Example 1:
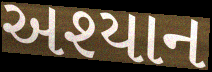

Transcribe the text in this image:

અશ્યાન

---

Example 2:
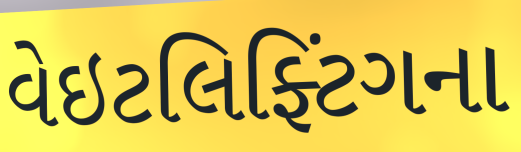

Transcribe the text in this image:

વેઇટલિફ્ટિંગના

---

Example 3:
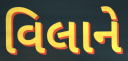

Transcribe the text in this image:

વિલાને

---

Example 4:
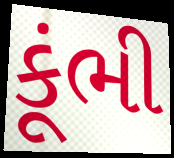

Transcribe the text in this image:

કૂંભી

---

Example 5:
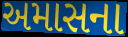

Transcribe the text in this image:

અમાસના